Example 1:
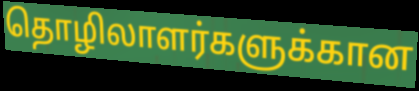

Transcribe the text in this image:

தொழிலாளர்களுக்கான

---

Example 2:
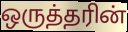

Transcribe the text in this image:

ஒருத்தரின்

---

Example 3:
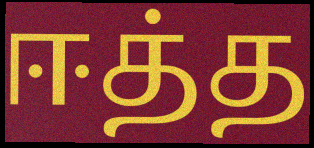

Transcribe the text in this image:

ஈத்த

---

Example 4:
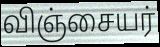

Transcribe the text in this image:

விஞ்சையர்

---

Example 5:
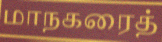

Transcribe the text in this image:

மாநகரைத்